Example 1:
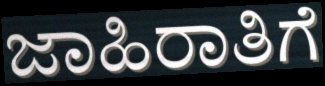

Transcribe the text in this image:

ಜಾಹಿರಾತಿಗೆ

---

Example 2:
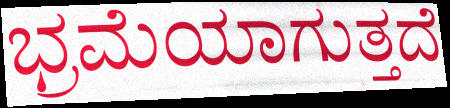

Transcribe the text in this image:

ಭ್ರಮೆಯಾಗುತ್ತದೆ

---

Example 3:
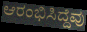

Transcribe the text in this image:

ಆರಂಭಿಸಿದ್ದೆವು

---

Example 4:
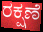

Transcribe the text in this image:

ರಕ್ಷಣೆ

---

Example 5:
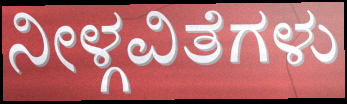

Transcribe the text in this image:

ನೀಳ್ಗವಿತೆಗಳು